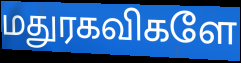
மதுரகவிகளே